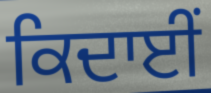
ਕਿਦਾਈਂ